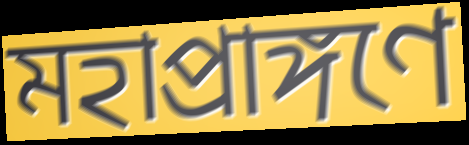
মহাপ্রাঙ্গণে